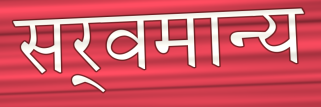
सर्वमान्य